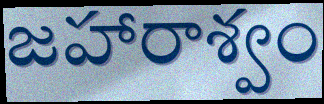
జహారాశ్వం